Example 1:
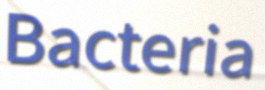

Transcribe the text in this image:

Bacteria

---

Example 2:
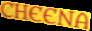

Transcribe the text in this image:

CHEENA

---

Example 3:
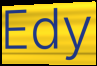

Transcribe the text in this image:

Edy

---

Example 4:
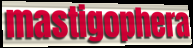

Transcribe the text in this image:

mastigophera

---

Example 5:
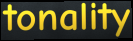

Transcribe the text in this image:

tonality